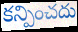
కన్పించదు